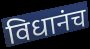
विधानंच